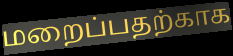
மறைப்பதற்காக